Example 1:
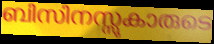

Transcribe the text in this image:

ബിസിനസ്സുകാരുടെ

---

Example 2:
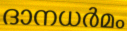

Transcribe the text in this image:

ദാനധർമം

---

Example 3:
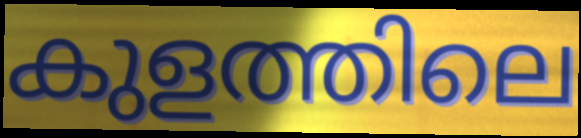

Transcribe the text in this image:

കുളത്തിലെ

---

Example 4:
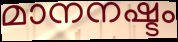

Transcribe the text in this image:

മാനനഷ്ടം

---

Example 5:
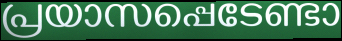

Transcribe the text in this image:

പ്രയാസപ്പെടേണ്ടാ